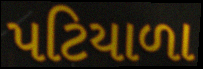
પટિયાળા